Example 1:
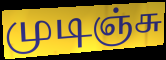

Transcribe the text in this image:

முடிஞ்சு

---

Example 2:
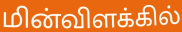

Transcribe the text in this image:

மின்விளக்கில்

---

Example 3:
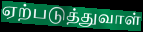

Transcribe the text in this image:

ஏற்படுத்துவாள்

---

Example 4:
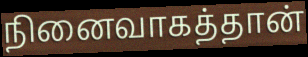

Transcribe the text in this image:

நினைவாகத்தான்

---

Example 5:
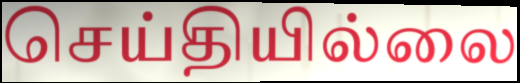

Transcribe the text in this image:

செய்தியில்லை